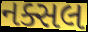
નક્સલ